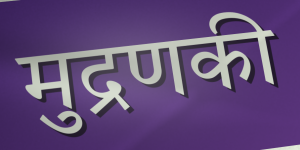
मुद्रणकी